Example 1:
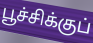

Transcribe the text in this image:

பூச்சிக்குப்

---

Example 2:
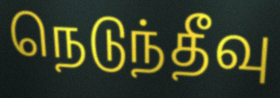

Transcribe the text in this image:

நெடுந்தீவு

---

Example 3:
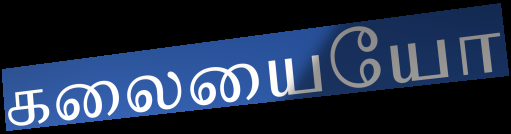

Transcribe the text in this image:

கலையையோ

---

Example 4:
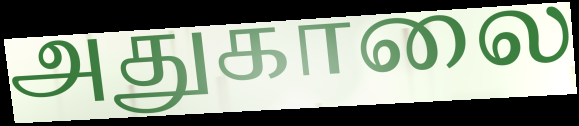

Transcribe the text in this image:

அதுகாலை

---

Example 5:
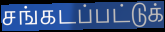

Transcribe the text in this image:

சங்கடப்பட்டுக்